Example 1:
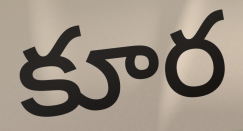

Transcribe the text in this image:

కూర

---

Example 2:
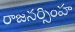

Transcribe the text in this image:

రాజనర్సింహ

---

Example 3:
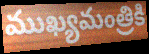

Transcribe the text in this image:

ముఖ్యమంత్రికి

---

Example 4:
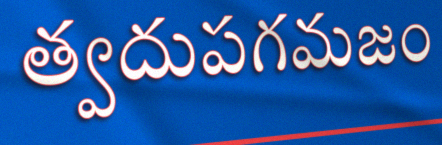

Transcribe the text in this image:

త్వదుపగమజం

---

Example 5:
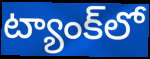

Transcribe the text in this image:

ట్యాంక్‌లో